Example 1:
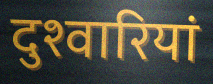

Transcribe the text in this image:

दुश्वारियां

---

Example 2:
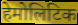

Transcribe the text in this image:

हेमोलिटिक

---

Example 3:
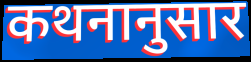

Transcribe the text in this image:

कथनानुसार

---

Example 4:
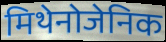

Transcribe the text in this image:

मिथेनोजेनिक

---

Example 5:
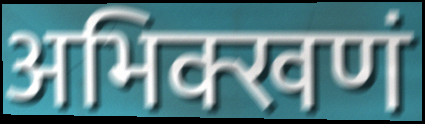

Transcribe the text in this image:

अभिक्खणं